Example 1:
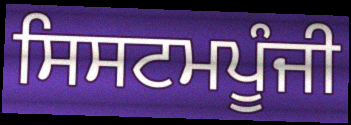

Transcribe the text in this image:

ਸਿਸਟਮਪੂੰਜੀ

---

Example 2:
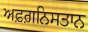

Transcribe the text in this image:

ਅਫ਼ਗ਼ਨਿਸਤਾਨ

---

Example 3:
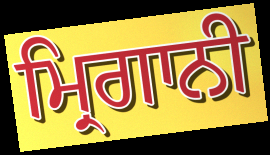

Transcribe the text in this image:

ਮ੍ਰਿਗਾਨੀ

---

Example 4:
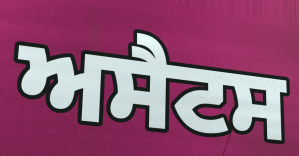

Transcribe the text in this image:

ਅਸੈਟਸ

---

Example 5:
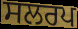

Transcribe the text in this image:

ਸਲਰਪ